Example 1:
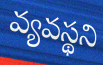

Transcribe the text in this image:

వ్యవస్థని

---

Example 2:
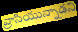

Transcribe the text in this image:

వ్రాసియున్నాడని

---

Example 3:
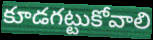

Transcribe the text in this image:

కూడగట్టుకోవాలి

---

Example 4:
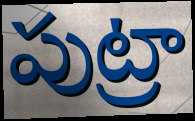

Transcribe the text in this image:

పుట్రా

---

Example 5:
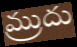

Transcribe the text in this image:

మ్రుదు